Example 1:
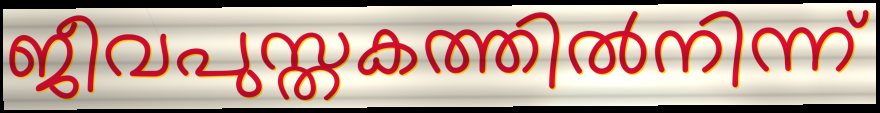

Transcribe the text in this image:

ജീവപുസ്തകത്തിൽനിന്ന്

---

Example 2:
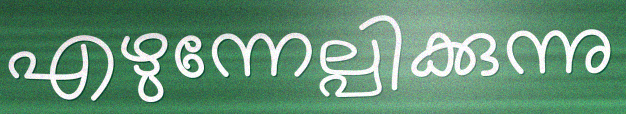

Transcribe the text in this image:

എഴുന്നേല്പിക്കുന്നു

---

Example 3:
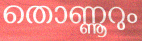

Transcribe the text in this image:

തൊണ്ണൂറും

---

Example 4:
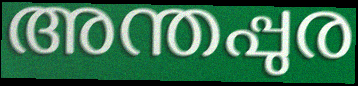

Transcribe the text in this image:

അന്തപ്പുര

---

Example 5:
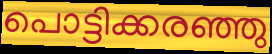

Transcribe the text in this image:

പൊട്ടിക്കരഞ്ഞു